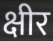
क्षीर